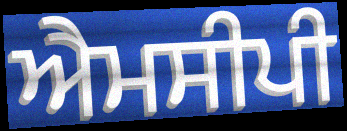
ਐਮਸੀਪੀ